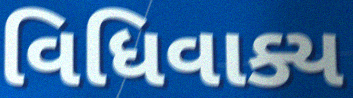
વિધિવાક્ય